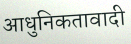
आधुनिकतावादी